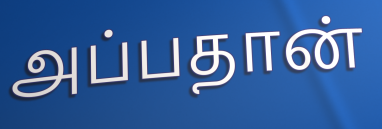
அப்பதான்